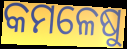
କମଳେଷୁ